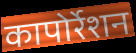
कापोर्रेशन